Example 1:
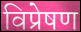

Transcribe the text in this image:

विप्रेषण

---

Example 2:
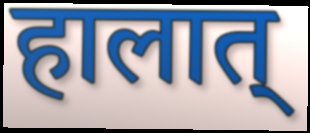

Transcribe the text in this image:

हालात्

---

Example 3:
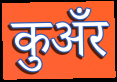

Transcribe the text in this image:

कुअँर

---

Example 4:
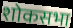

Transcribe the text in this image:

शोकसभा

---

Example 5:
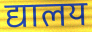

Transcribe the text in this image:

द्यालय